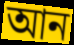
আন